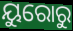
ୟୁରୋରୁ